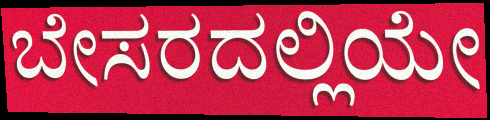
ಬೇಸರದಲ್ಲಿಯೇ